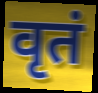
वृतं